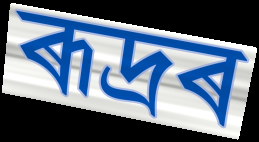
ৰূদ্ৰৰ